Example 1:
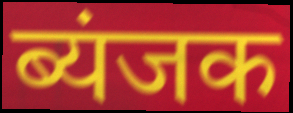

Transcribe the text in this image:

ब्यंजक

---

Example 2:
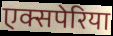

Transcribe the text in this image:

एक्सपेरिया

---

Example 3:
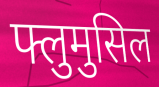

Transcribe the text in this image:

फ्लुमुसिल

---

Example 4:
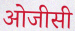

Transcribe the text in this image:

ओजीसी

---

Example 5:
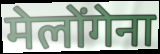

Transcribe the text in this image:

मेलोंगेना